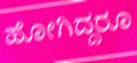
ಹೋಗಿದ್ದರೂ